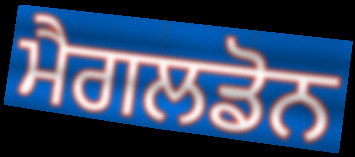
ਮੈਗਲਡੋਨ